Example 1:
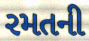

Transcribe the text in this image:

રમતની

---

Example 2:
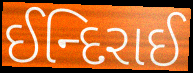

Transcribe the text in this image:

ઈન્દિરાઈ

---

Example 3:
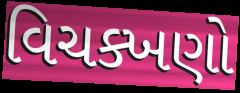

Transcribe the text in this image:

વિચક્ખણો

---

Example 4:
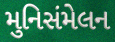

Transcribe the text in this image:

મુનિસંમેલન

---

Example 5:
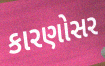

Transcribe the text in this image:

કારણોસર